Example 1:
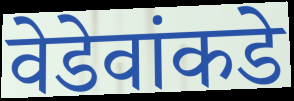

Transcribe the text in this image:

वेडेवांकडे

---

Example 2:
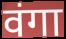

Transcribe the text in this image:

वंगा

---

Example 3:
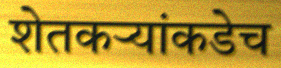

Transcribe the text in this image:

शेतकऱ्यांकडेच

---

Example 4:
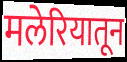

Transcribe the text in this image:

मलेरियातून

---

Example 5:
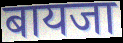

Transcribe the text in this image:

बायजा